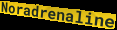
Noradrenaline